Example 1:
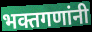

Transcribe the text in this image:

भक्तगणांनी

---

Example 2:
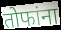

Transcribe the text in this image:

तोफांना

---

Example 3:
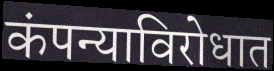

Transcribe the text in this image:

कंपन्याविरोधात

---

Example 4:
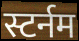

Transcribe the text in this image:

स्टर्नम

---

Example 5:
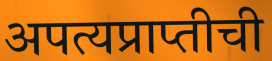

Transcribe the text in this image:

अपत्यप्राप्तीची